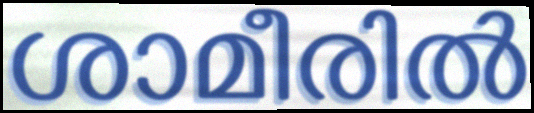
ശാമീരിൽ